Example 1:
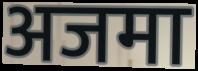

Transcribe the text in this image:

अजमा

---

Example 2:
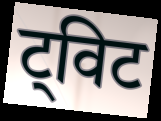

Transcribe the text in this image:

ट्विट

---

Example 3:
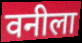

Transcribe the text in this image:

वनीला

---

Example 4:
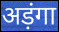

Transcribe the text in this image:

अड़ंगा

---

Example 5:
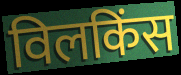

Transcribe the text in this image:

विलकिंस